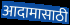
आदामासाठी